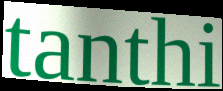
tanthi